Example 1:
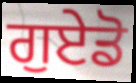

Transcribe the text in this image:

ਗੁਏਡੋ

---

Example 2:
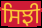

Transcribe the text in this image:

ਸਿਝੀ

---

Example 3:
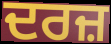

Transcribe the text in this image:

ਦਰਜ਼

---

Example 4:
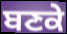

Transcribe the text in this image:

ਬਣਕੇ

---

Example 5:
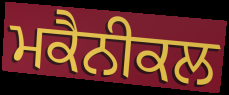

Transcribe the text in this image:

ਮਕੈਨੀਕਲ